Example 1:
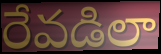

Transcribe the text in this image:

రేవడిలా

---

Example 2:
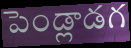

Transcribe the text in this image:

పెండ్లాడగ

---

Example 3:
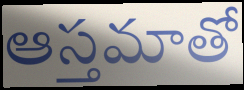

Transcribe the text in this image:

ఆస్తమాతో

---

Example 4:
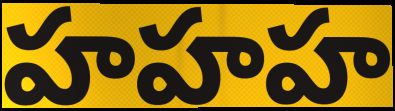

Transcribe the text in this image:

హహహ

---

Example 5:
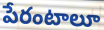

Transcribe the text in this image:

పేరంటాలూ